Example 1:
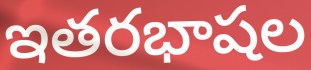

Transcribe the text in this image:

ఇతరభాషల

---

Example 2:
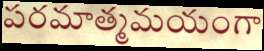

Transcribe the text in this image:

పరమాత్మమయంగా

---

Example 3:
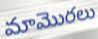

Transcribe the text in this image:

మామొరలు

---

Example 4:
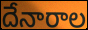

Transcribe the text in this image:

దేనారాల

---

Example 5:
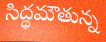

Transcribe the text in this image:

సిద్ధమౌతున్న